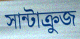
সান্টাক্রুজ